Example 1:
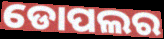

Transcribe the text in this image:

ଡୋପଲର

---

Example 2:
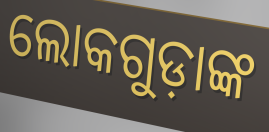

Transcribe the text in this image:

ଲୋକଗୁଡ଼ାଙ୍କ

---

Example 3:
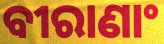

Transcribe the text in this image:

ବୀରାଣାଂ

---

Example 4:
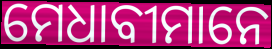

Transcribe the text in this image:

ମେଧାବୀମାନେ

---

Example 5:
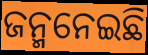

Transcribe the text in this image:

ଜନ୍ମନେଇଛି